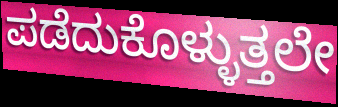
ಪಡೆದುಕೊಳ್ಳುತ್ತಲೇ